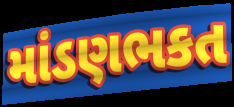
માંડણભકત